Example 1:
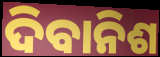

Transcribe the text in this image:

ଦିବାନିଶ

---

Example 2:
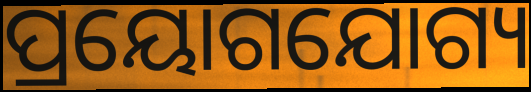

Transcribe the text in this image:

ପ୍ରୟୋଗଯୋଗ୍ୟ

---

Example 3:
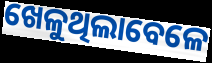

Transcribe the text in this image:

ଖେଳୁଥିଲାବେଳେ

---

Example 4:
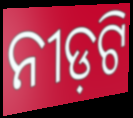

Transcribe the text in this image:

ନୀଡ଼ଟି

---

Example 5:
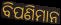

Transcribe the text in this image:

ବିପଣିମାନ